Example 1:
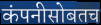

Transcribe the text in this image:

कंपनीसोबतच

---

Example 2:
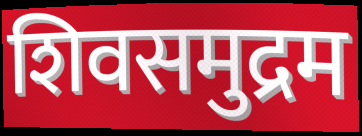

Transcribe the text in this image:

शिवसमुद्रम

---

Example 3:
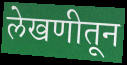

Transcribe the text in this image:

लेखणीतून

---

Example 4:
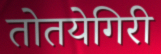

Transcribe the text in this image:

तोतयेगिरी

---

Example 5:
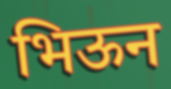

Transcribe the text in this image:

भिऊन